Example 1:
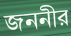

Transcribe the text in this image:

জননীর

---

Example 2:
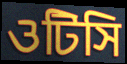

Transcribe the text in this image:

ওটিসি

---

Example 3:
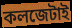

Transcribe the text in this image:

কলজেটাই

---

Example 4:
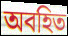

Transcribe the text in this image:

অবহিত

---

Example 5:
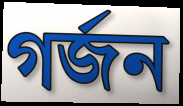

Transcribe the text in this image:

গর্জন